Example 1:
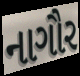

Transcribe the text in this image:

નાગૌર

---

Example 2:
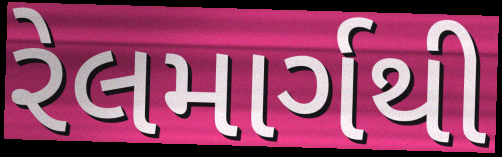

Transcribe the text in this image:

રેલમાર્ગથી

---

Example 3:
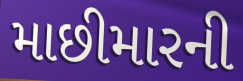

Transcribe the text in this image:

માછીમારની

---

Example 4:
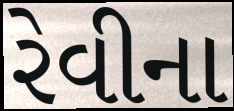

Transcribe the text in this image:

રેવીના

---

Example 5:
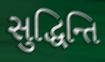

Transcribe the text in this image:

સુદ્ધિન્તિ